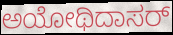
ಅಯೋಥಿದಾಸರ್